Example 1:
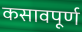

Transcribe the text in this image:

कसावपूर्ण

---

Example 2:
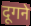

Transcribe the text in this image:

दूगने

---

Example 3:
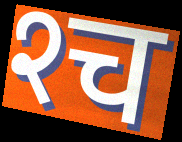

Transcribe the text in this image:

श्च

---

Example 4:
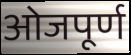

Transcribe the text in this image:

ओजपूर्ण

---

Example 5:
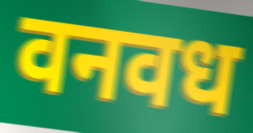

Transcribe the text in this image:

वनवध